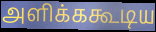
அளிக்ககூடிய